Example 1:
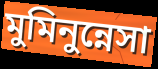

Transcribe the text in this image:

মুমিনুন্নেসা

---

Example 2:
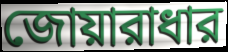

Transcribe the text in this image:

জোয়ারাধার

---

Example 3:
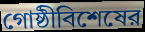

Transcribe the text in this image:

গোষ্ঠীবিশেষের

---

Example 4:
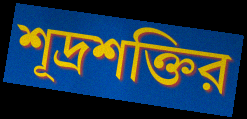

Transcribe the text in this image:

শূদ্রশক্তির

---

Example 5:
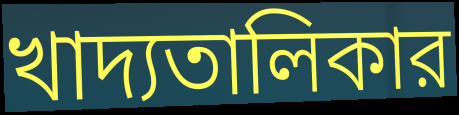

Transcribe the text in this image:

খাদ্যতালিকার